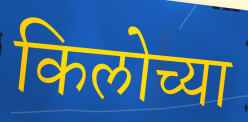
किलोच्या